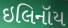
ઇલિનૉય